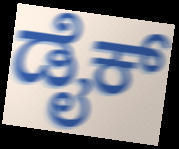
ಡೈಕ್